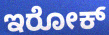
ಇರೋಕ್